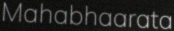
Mahabhaarata